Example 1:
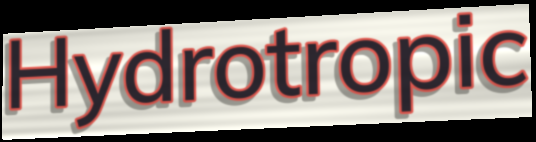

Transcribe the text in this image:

Hydrotropic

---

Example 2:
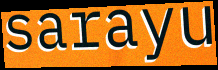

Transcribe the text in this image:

sarayu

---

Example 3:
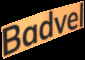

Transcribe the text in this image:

Badvel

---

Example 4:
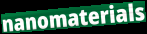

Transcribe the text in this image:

nanomaterials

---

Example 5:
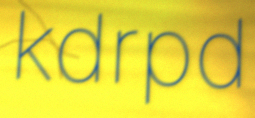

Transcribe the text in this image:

kdrpd